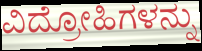
ವಿದ್ರೋಹಿಗಳನ್ನು